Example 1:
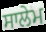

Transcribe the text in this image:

ਸਾਲੇਮ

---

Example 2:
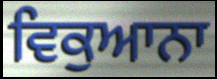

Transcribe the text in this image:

ਵਿਕੁਆਨਾ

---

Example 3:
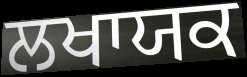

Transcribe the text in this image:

ਲਖਾਯਕ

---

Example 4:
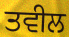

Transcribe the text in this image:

ਤਵੀਲ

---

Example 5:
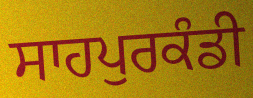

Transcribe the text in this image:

ਸਾਹਪੁਰਕੰਡੀ